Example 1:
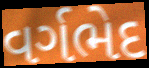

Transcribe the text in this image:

વર્ગભેદ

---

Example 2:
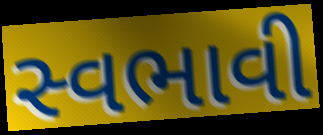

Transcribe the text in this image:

સ્વભાવી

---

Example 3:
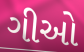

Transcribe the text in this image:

ગીઓ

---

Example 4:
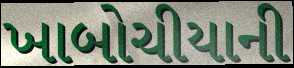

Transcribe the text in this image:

ખાબોચીયાની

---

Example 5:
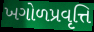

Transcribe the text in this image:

ખગોળપ્રવૃત્તિ